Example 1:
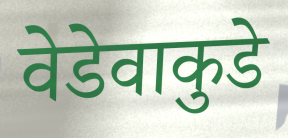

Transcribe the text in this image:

वेडेवाकुडे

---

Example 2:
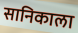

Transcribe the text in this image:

सानिकाला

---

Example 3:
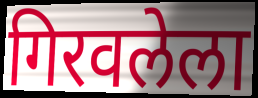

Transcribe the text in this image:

गिरवलेला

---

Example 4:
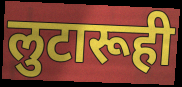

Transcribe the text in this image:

लुटारूही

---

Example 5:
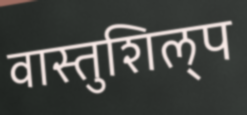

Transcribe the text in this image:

वास्तुशिल्प